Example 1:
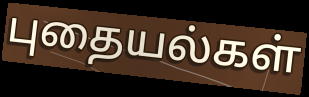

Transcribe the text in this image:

புதையல்கள்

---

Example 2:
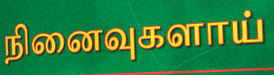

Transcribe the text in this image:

நினைவுகளாய்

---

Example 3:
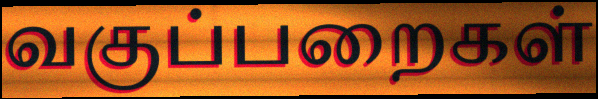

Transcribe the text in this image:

வகுப்பறைகள்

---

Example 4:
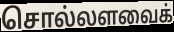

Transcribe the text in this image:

சொல்லளவைக்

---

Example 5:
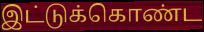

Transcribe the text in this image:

இட்டுக்கொண்ட